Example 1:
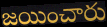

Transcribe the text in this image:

జయించారు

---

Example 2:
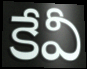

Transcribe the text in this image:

కేవీ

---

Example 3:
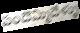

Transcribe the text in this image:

పందొమ్మిదేళ్ళు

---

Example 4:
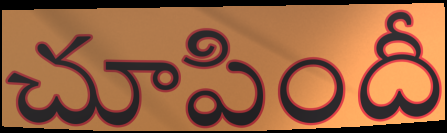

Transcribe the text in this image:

చూపిందీ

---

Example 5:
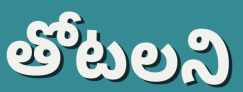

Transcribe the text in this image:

తోటలని